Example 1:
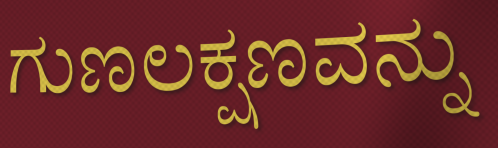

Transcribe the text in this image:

ಗುಣಲಕ್ಷಣವನ್ನು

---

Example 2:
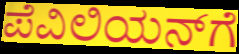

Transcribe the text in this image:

ಪೆವಿಲಿಯನ್‌ಗೆ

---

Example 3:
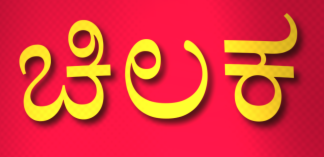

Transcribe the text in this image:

ಚಿಲಕ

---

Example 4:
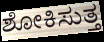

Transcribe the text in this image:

ಶೋಕಿಸುತ್ತ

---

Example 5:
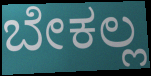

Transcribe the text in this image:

ಬೇಕಲ್ಲ